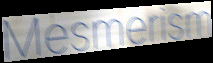
Mesmerism